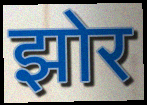
झोर